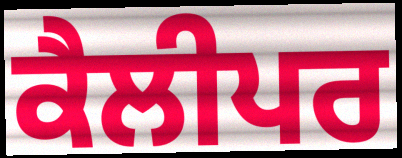
ਕੈਲੀਪਰ